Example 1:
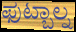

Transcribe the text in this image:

ಫುಟ್ಬಾಲ್ನ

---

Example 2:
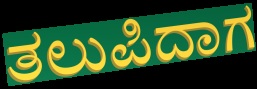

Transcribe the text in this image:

ತಲುಪಿದಾಗ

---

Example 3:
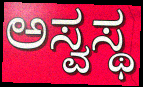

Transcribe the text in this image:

ಅಸ್ವಸ್ಥ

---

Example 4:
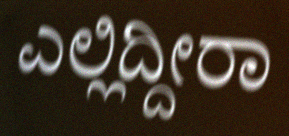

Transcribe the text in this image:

ಎಲ್ಲಿದ್ದೀರಾ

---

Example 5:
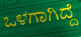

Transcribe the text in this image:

ಒಳಗಾಗಿದ್ದೆ